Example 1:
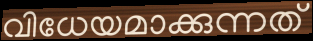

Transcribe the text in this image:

വിധേയമാക്കുന്നത്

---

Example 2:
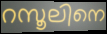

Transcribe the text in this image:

റസൂലിനെ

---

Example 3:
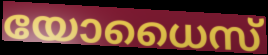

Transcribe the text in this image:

യോധൈസ്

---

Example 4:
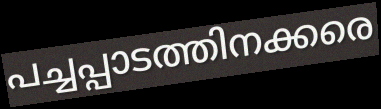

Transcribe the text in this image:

പച്ചപ്പാടത്തിനക്കരെ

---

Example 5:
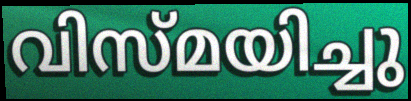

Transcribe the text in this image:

വിസ്മയിച്ചു